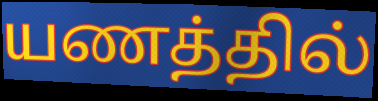
யணத்தில்